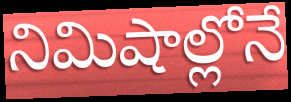
నిమిషాల్లోనే